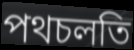
পথচলতি